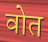
वोत